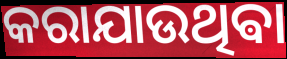
କରାଯାଉଥିଵା